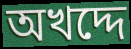
অখদ্দে